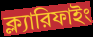
ক্ল্যারিফাইং